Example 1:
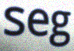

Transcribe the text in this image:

seg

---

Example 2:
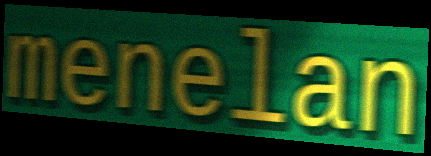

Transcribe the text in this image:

menelan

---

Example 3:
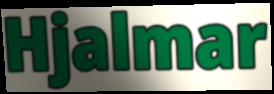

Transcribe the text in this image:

Hjalmar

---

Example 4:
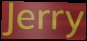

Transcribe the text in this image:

Jerry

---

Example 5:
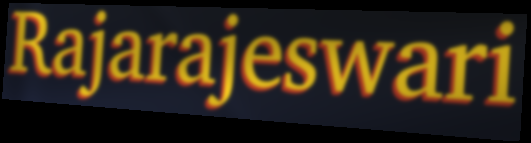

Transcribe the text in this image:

Rajarajeswari